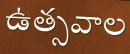
ఉత్సవాల